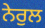
ਨੇਰੁਲ